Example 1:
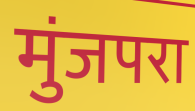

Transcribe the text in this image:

मुंजपरा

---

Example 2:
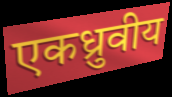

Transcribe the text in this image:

एकध्रुवीय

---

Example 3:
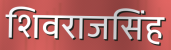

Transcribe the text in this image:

शिवराजसिंह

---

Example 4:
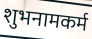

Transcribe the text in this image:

शुभनामकर्म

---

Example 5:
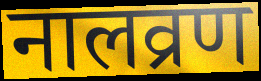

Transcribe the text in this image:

नालव्रण